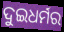
ଦୁଇଧର୍ମର